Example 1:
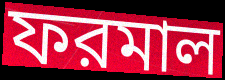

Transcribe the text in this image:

ফরমাল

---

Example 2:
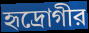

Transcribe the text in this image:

হৃদ্রোগীর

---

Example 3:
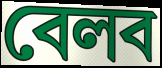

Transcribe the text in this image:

বেলব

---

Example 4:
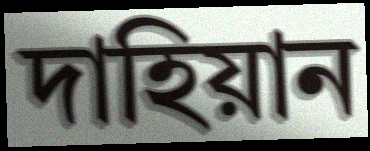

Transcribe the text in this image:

দাহিয়ান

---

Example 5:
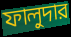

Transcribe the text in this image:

ফালুদার